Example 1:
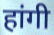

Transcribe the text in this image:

हांगी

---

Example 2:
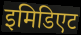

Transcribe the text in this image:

इमिडिएट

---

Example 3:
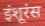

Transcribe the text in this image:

इंशूरंस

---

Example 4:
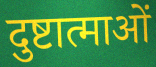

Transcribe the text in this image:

दुष्टात्माओं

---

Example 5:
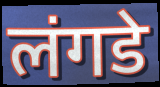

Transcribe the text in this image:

लंगडे